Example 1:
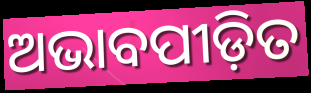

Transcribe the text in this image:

ଅଭାବପୀଡ଼ିତ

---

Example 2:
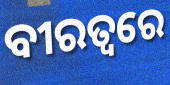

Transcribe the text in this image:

ବୀରତ୍ୱରେ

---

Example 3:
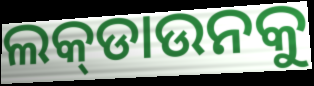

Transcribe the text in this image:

ଲକ୍‌ଡାଉନକୁ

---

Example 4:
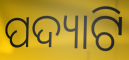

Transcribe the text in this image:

ପଦ୍ୟାଟି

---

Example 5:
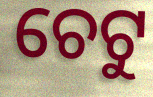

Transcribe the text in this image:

ଚେଟୁ